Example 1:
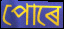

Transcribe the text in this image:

পোৰে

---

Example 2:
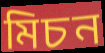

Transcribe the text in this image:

মিচন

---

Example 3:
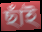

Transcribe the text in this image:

ছাঁই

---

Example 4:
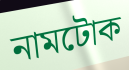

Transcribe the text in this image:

নামটোক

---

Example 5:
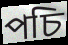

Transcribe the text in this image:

পচি